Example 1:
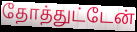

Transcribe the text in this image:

தோத்துட்டேன்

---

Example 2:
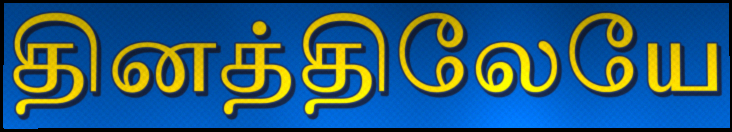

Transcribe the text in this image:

தினத்திலேயே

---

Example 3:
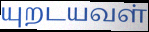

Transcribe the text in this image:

யுறடயவள்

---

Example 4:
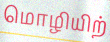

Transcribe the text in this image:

மொழியிற்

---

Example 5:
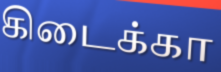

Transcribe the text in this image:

கிடைக்கா